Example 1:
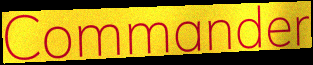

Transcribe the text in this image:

Commander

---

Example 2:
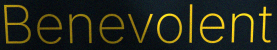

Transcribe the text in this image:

Benevolent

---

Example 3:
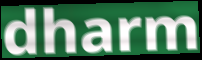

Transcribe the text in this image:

dharm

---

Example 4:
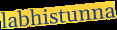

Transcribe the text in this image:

labhistunna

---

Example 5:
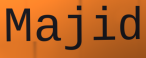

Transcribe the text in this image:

Majid